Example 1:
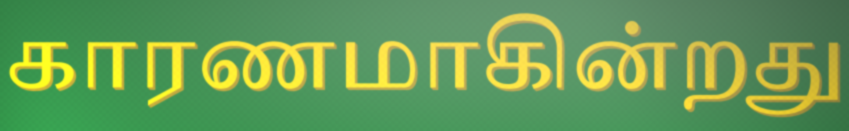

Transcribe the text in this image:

காரணமாகின்றது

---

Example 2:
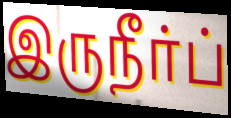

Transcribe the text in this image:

இருநீர்ப்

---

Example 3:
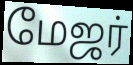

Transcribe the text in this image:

மேஜர்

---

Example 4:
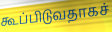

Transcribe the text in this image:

கூப்பிடுவதாகச்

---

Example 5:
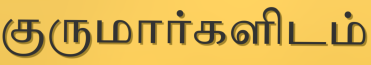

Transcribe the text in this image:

குருமார்களிடம்